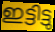
ഇട്ടിട്ടു